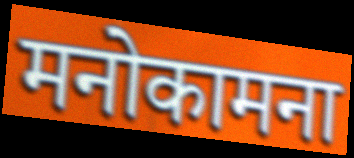
मनोकामना